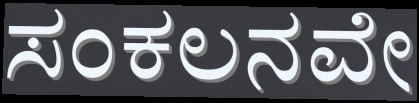
ಸಂಕಲನವೇ